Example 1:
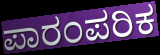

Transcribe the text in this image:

ಪಾರಂಪರಿಕ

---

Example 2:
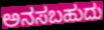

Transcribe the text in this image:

ಅನಸಬಹುದು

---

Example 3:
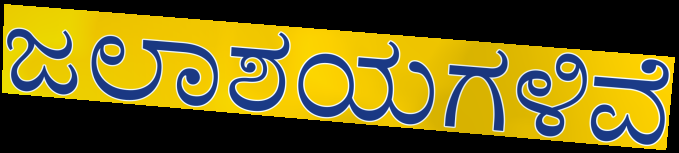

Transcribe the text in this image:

ಜಲಾಶಯಗಳಿವೆ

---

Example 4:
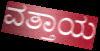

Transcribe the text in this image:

ವತ್ತಾಯ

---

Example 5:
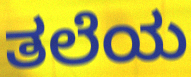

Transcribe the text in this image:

ತಲೆಯ